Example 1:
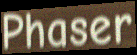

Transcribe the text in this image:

Phaser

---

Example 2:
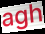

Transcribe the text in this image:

agh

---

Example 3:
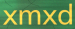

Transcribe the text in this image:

xmxd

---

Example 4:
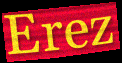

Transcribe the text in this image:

Erez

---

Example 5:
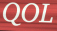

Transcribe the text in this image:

QOL